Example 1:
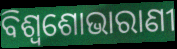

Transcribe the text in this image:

ବିଶ୍ୱଶୋଭାରାଣୀ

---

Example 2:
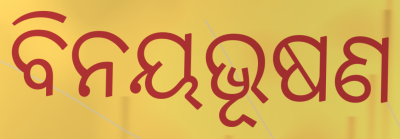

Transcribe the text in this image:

ବିନୟଭୂଷଣ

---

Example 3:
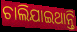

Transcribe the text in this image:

ଚାଲିଯାଇଥାନ୍ତି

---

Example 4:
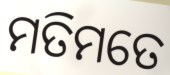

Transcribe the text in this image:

ମତିମତେ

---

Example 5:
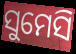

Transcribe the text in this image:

ସୁମେସି